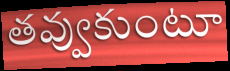
తవ్వుకుంటూ